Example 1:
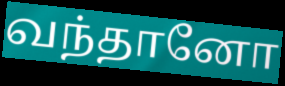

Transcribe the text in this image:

வந்தானோ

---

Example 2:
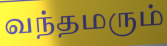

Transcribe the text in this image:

வந்தமரும்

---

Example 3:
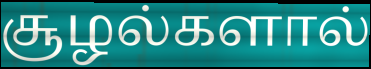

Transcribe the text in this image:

சூழல்களால்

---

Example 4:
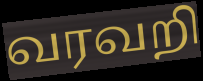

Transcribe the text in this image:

வரவறி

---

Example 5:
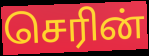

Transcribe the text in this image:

செரின்